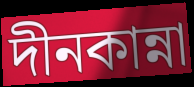
দীনকান্না